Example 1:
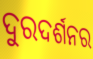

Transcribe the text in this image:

ଦୁରଦର୍ଶନର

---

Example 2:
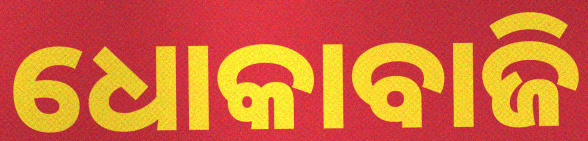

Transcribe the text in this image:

ଧୋକାବାଜି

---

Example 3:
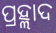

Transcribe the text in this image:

ପ୍ରହ୍ଲାଦ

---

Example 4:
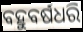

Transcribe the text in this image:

ବହୁବର୍ଷଧରି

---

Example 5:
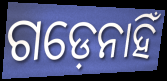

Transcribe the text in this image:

ଗଡ଼େନାହିଁ